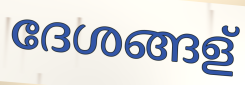
ദേശങ്ങള്